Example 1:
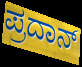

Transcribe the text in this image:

ಪ್ರದಾನ್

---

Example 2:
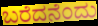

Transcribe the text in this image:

ಬರೆದನೆಂದು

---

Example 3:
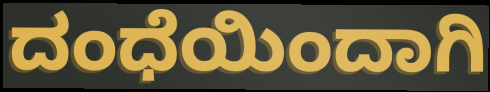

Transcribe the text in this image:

ದಂಧೆಯಿಂದಾಗಿ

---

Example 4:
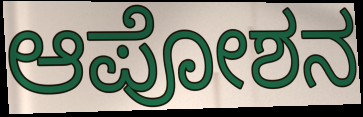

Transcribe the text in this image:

ಆಪೋಶನ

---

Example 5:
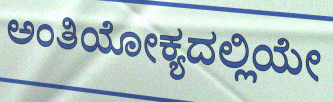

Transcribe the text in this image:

ಅಂತಿಯೋಕ್ಯದಲ್ಲಿಯೇ